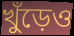
খুঁড়েও